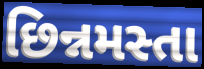
છિન્નમસ્તા